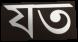
যত